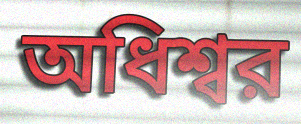
অধিশ্বর